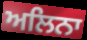
ਅਲਿਨਾ